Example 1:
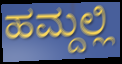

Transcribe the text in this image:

ಹಮ್ದಲ್ಲಿ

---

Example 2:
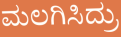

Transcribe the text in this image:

ಮಲಗಿಸಿದ್ರು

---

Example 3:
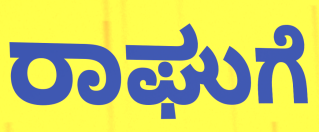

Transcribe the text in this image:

ರಾಘುಗೆ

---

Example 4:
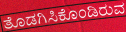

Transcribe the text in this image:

ತೊಡಗಿಸಿಕೊಂಡಿರುವ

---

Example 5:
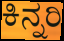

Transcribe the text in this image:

ಕಿನ್ನರಿ